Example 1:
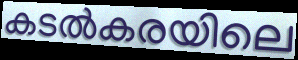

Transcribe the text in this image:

കടൽകരയിലെ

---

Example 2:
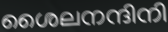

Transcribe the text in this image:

ശൈലനന്ദിനി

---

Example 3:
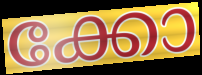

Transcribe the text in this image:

ക്കോ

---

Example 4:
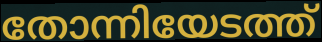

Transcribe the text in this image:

തോന്നിയേടത്ത്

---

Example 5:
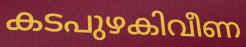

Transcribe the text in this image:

കടപുഴകിവീണ